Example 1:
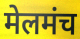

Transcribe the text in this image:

मेलमंच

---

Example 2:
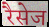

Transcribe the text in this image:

रैसेज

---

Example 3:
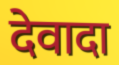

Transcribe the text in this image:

देवादा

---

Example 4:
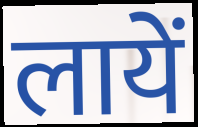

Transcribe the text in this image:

लायें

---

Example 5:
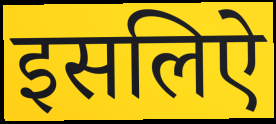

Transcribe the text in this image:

इसलिऐ